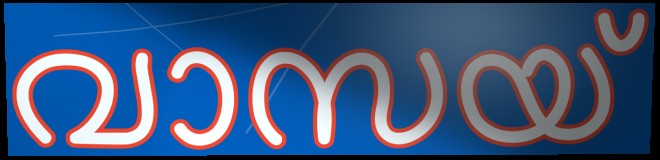
വാസയ്